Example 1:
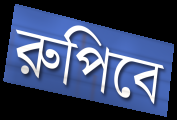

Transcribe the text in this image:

রুপিবে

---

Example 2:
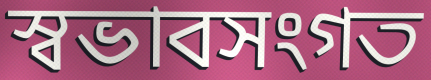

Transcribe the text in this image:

স্বভাবসংগত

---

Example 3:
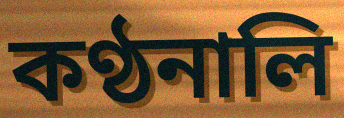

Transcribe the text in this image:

কণ্ঠনালি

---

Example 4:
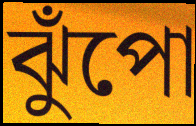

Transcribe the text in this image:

ঝুঁপো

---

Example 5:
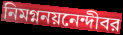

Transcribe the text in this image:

নিমগ্ননয়নেন্দীবর